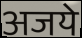
अजये